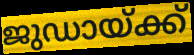
ജുഡായ്ക്ക്